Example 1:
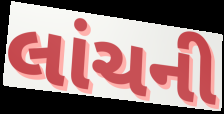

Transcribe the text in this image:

લાંચની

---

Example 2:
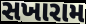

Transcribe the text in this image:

સખારામ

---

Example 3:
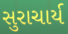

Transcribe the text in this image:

સુરાચાર્ય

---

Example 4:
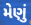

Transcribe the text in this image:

મેણું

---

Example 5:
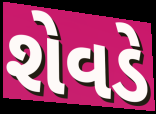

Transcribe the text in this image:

શેવડે